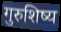
गुरुशिष्य